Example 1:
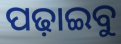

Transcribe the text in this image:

ପଢ଼ାଇବୁ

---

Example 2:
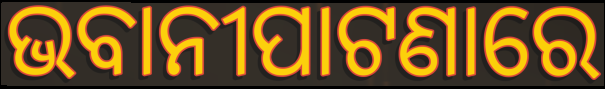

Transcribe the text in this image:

ଭବାନୀପାଟଣାରେ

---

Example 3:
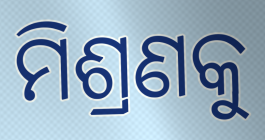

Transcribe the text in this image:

ମିଶ୍ରଣକୁ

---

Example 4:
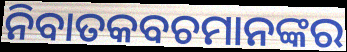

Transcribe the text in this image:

ନିବାତକବଚମାନଙ୍କର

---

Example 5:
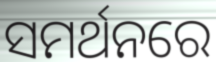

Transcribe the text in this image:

ସମର୍ଥନରେ